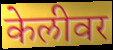
केलीवर